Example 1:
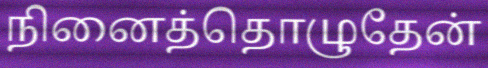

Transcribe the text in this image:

நினைத்தொழுதேன்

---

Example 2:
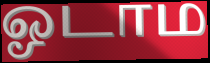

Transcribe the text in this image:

ஓடாம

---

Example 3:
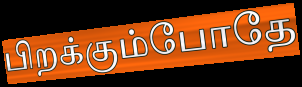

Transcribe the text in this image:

பிறக்கும்போதே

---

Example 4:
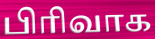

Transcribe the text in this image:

பிரிவாக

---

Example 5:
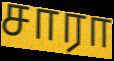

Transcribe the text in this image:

சாரா